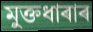
মুক্তধাৰাৰ